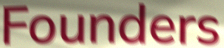
Founders